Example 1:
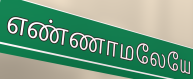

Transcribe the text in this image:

எண்ணாமலேயே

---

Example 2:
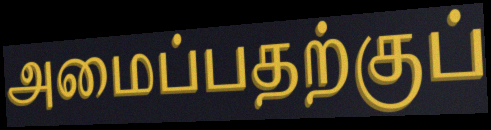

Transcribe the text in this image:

அமைப்பதற்குப்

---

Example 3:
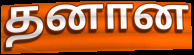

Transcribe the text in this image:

தனான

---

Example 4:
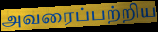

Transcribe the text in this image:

அவரைப்பற்றிய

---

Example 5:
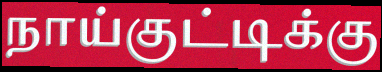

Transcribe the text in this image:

நாய்குட்டிக்கு